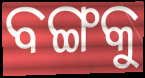
ବଙ୍ଗକୁ